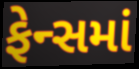
ફેન્સમાં